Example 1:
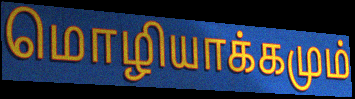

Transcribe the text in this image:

மொழியாக்கமும்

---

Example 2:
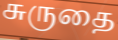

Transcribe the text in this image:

சுருதை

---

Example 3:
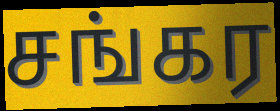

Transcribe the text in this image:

சங்கர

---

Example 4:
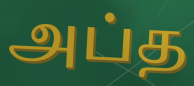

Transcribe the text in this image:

அப்த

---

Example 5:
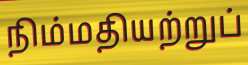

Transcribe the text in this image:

நிம்மதியற்றுப்